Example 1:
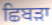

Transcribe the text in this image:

ਛਿਬੜਾ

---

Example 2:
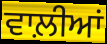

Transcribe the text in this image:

ਵਾਲ਼ੀਆਂ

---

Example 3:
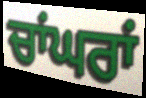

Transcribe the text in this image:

ਚਾਂਘਰਾਂ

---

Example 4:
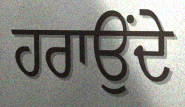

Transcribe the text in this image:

ਹਰਾਉਂਦੇ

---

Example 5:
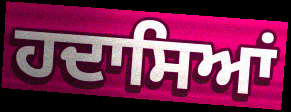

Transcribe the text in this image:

ਹਦਾਸਿਆਂ